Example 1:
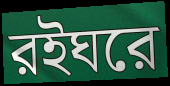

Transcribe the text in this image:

রইঘরে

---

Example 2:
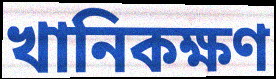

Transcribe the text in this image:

খানিকক্ষণ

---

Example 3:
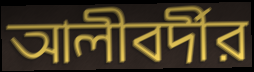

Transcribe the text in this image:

আলীবর্দীর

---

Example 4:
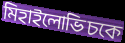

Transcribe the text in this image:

মিহাইলোভিচকে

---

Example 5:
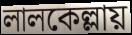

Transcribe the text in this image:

লালকেল্লায়